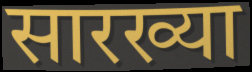
सारख्या